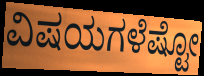
ವಿಷಯಗಳೆಷ್ಟೋ